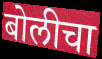
बोलीचा